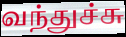
வந்துச்சு